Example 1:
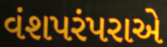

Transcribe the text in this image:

વંશપરંપરાએ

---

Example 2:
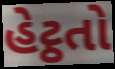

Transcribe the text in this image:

હેટ્ઠતો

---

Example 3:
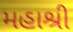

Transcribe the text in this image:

મહાશ્રી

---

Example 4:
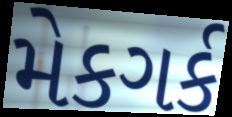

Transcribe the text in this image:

મેકગર્ક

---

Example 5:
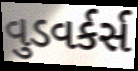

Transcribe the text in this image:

વુડવર્કર્સ